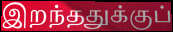
இறந்ததுக்குப்